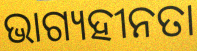
ଭାଗ୍ୟହୀନତା